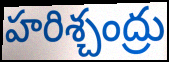
హరిశ్చంద్రు